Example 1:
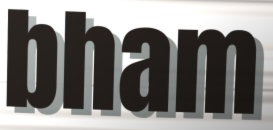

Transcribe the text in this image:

bham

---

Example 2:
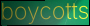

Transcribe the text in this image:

boycotts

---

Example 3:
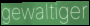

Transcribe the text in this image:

gewaltiger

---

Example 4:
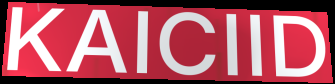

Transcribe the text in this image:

KAICIID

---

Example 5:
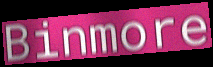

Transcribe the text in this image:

Binmore